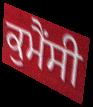
ਕੁਮੈਂਸੀ